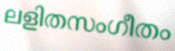
ലളിതസംഗീതം